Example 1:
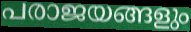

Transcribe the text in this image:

പരാജയങ്ങളും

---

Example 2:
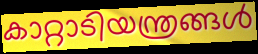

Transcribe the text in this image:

കാറ്റാടിയന്ത്രങ്ങൾ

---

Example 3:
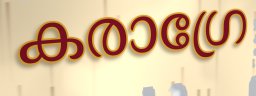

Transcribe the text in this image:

കരാഗ്രേ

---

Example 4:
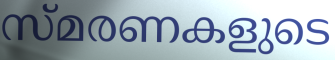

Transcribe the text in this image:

സ്മരണകളുടെ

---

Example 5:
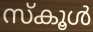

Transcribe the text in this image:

സ്കൂൾ